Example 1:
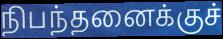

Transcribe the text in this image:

நிபந்தனைக்குச்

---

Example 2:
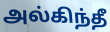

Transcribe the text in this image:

அல்கிந்தீ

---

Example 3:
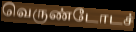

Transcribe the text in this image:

வெருண்டோடச்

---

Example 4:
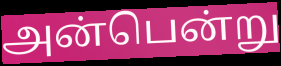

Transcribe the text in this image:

அன்பென்று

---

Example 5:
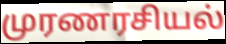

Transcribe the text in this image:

முரணரசியல்